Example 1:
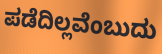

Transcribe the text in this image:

ಪಡೆದಿಲ್ಲವೆಂಬುದು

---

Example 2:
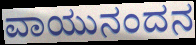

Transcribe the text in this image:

ವಾಯುನಂದನ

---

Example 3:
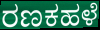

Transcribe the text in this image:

ರಣಕಹಳೆ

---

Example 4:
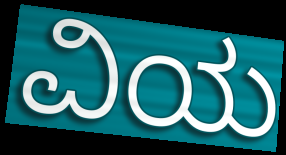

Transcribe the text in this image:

ವಿಯ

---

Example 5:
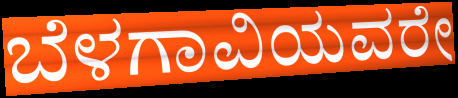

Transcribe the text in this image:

ಬೆಳಗಾವಿಯವರೇ